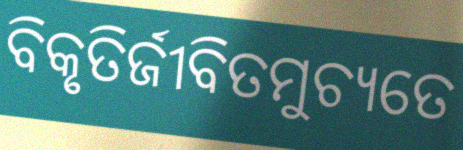
ବିକୃତିର୍ଜୀବିତମୁଚ୍ୟତେ